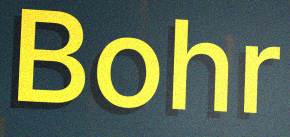
Bohr